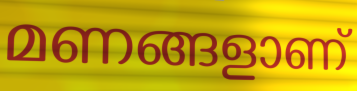
മണങ്ങളാണ്